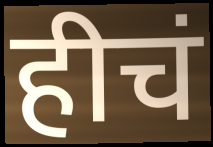
हीचं